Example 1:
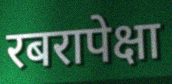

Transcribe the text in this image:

रबरापेक्षा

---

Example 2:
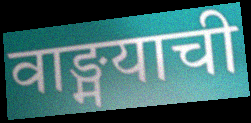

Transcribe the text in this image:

वाङ्मयाची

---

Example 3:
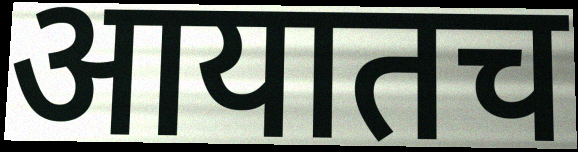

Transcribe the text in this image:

आयातच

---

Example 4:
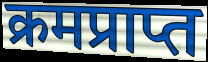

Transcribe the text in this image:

क्रमप्राप्‍त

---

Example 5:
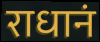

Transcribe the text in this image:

राधानं